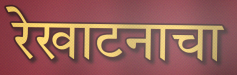
रेखाटनाचा